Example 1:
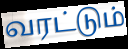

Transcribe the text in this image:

வரட்டும்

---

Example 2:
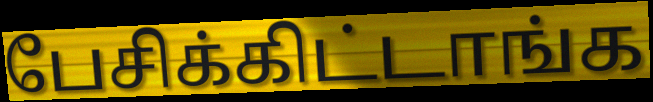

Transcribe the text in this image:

பேசிக்கிட்டாங்க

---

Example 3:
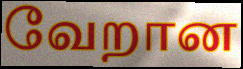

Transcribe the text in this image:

வேறான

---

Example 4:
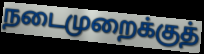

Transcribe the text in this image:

நடைமுறைக்குத்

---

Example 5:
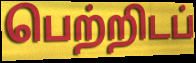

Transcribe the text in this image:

பெற்றிடப்